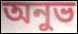
অনুভ